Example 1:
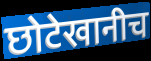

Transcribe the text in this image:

छोटेखानीच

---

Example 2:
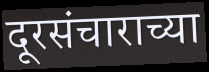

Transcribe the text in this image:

दूरसंचाराच्या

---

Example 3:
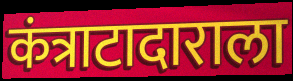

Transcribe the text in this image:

कंत्राटादाराला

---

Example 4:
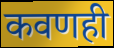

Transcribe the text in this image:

कवणही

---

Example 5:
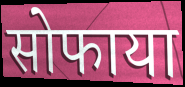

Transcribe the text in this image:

सोफाया